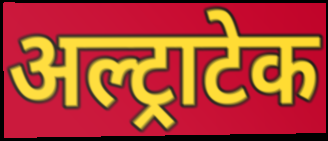
अल्ट्राटेक